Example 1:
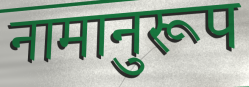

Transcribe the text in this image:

नामानुरूप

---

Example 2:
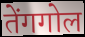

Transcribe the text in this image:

तेंगगोल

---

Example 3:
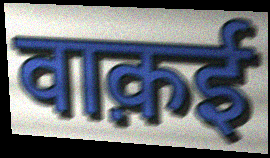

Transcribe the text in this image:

वाक़ई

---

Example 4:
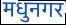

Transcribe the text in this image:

मधुनगर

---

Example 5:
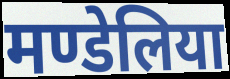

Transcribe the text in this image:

मण्डेलिया